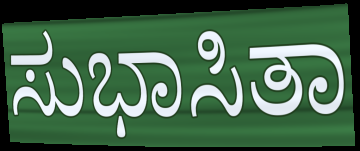
ಸುಭಾಸಿತಾ